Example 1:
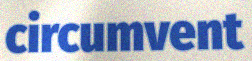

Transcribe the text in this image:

circumvent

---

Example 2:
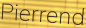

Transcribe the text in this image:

Pierrend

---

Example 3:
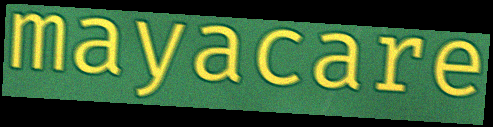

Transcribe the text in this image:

mayacare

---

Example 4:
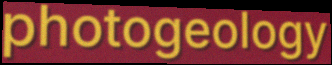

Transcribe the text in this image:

photogeology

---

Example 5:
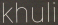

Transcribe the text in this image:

khuli